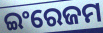
ଇଂରେଜମ